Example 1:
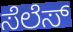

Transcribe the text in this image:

ಸೆಲೆಸ್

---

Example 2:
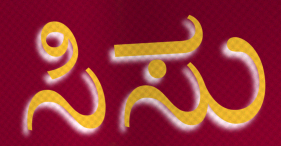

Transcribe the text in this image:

ಸಿಸು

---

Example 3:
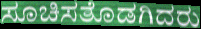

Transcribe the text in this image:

ಸೂಚಿಸತೊಡಗಿದರು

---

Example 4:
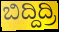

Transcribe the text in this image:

ಬಿದ್ದಿದ್ರಿ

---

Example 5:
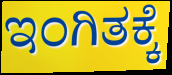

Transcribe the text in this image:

ಇಂಗಿತಕ್ಕೆ